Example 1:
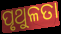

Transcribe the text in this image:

ପୃଥୁଳତା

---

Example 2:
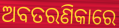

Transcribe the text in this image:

ଅବତରଣିକାରେ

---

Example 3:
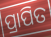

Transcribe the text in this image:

ପ୍ରାପିତ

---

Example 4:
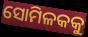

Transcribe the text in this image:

ସୋମିଳକକୁ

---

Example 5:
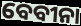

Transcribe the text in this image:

ବେବୀନା